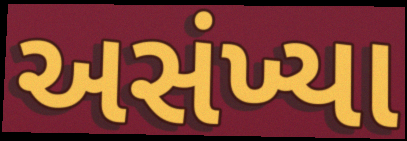
અસંખ્યા